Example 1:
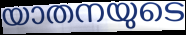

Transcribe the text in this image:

യാതനയുടെ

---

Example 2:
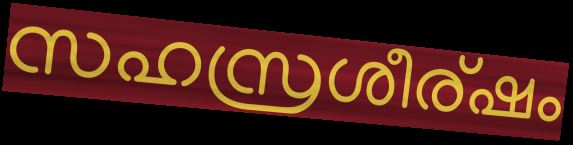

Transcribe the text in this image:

സഹസ്രശീര്ഷം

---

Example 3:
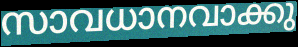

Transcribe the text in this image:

സാവധാനവാക്കു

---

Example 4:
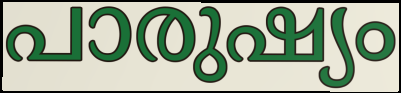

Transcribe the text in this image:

പാരുഷ്യം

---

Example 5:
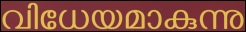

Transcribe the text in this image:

വിധേയമാകുന്നു